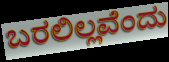
ಬರಲಿಲ್ಲವೆಂದು